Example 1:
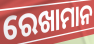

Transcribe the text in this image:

ରେଖାମାନ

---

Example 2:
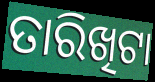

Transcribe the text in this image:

ତାରିଖିଟା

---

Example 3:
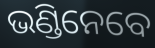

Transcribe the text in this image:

ଭଣ୍ଡିନେବେ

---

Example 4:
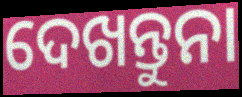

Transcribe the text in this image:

ଦେଖନ୍ତୁନା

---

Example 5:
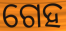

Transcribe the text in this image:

ଗେହ